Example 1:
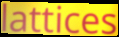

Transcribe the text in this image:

lattices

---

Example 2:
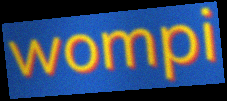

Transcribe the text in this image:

wompi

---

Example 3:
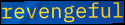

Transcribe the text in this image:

revengeful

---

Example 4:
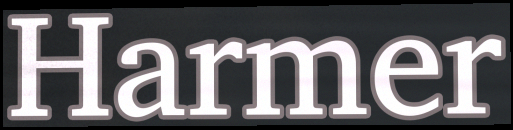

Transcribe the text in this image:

Harmer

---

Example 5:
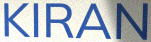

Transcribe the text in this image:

KIRAN